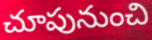
చూపునుంచి